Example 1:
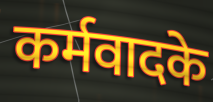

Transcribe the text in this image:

कर्मवादके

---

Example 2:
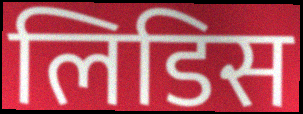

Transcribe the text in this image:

लिडिस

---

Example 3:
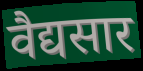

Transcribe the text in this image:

वैद्यसार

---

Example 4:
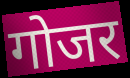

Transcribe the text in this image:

गोजर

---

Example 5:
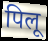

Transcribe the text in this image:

पिलू